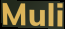
Muli